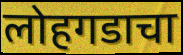
लोहगडाचा